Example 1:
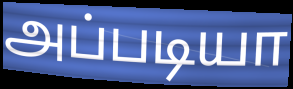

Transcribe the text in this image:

அப்படியா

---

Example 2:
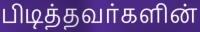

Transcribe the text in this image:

பிடித்தவர்களின்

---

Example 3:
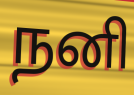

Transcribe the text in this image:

நனி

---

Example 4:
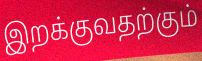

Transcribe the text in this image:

இறக்குவதற்கும்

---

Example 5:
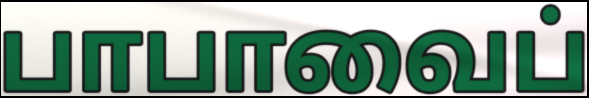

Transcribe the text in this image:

பாபாவைப்